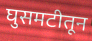
घुसमटीतून